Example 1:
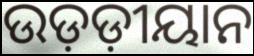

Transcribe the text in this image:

ଉଡ଼ଡ଼ୀୟାନ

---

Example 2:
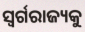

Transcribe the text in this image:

ସ୍ଵର୍ଗରାଜ୍ୟକୁ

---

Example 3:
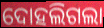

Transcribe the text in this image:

ଦୋହଲିଗଲା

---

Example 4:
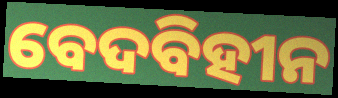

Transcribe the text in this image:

ବେଦବିହୀନ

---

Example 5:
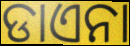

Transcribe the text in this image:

ଡାଏନା